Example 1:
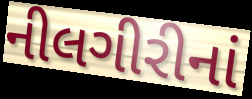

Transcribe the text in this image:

નીલગીરીનાં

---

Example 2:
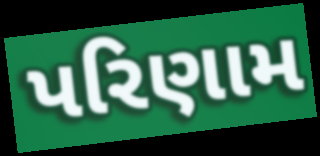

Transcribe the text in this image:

પરિણામ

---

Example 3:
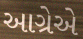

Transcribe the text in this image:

આગ્રેએ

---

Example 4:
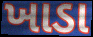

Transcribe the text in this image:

ખાડા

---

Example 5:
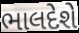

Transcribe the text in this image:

ભાલદેશે